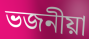
ভজনীয়া